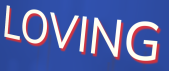
LOVING